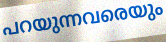
പറയുന്നവരെയും